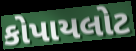
કોપાયલોટ